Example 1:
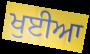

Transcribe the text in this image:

ਖੁਈਆ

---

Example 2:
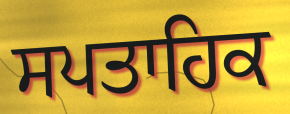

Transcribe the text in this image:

ਸਪਤਾਹਿਕ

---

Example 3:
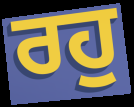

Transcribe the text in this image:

ਰਹੁ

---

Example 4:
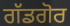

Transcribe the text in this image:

ਗੱਡਗੋਰ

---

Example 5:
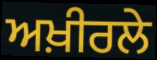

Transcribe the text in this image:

ਅਖ਼ੀਰਲੇ